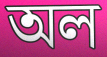
অল